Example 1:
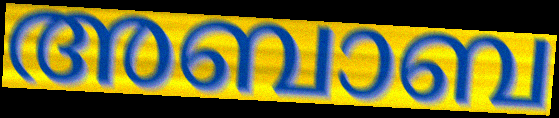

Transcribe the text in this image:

അബാബ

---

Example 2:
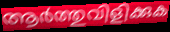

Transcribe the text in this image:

ആർത്തുവിളിക്കുക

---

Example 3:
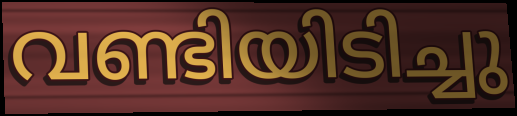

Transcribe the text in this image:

വണ്ടിയിടിച്ചു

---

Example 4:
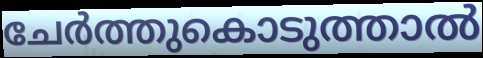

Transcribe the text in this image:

ചേർത്തുകൊടുത്താൽ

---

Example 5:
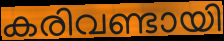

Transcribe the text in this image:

കരിവണ്ടായി